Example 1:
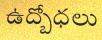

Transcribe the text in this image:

ఉద్బోధలు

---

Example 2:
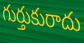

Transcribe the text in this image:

గుర్తుకురాదు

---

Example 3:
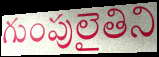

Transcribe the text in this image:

గుంపులైతిని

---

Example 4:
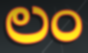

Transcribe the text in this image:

లం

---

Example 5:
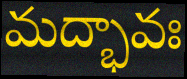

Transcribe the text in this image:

మద్భావః